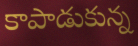
కాపాడుకున్న